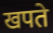
खपते